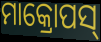
ମାକ୍ରୋପସ୍